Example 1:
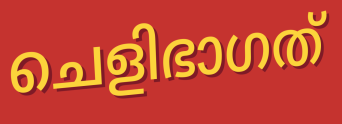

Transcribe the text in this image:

ചെളിഭാഗത്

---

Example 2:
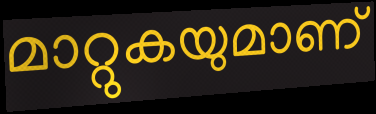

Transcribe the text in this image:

മാറ്റുകയുമാണ്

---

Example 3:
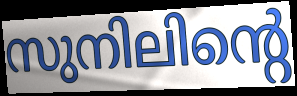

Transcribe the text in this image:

സുനിലിന്റെ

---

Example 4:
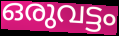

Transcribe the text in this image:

ഒരുവട്ടം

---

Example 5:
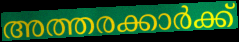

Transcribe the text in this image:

അത്തരക്കാർക്ക്